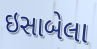
ઇસાબેલા